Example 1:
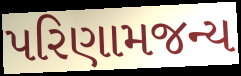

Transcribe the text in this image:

પરિણામજન્ય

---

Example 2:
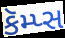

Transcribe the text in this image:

કૅમ્પ્સ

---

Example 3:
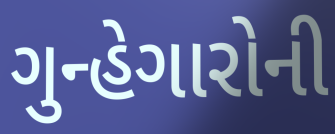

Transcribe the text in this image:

ગુન્હેગારોની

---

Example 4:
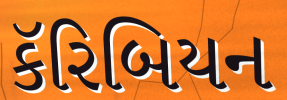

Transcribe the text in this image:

કૅરિબિયન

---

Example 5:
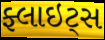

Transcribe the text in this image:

ફ્લાઇટ્સ